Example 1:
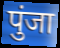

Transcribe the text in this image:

पुंजा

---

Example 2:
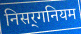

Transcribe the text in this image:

निसर्गनियम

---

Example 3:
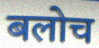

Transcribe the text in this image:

बलोच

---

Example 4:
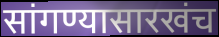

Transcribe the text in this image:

सांगण्यासारखंच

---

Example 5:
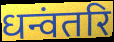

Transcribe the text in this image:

धन्वंतरि